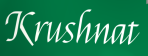
Krushnat